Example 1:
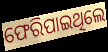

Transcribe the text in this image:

ଫେରିପାଇଥିଲେ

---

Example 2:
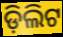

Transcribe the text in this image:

ଡ଼ିଲିଟ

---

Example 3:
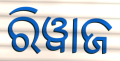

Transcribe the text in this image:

ରିୱାଜ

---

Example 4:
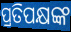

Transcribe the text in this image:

ପ୍ରତିପକ୍ଷଙ୍କ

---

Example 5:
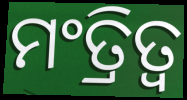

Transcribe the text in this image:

ମଂତ୍ରିତ୍ୱ